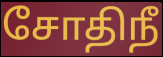
சோதிநீ